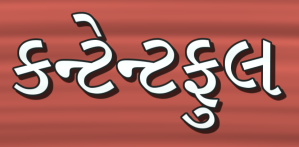
કન્ટેન્ટફુલ